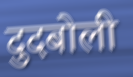
दुदबोली